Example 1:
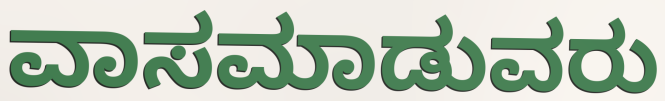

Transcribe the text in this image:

ವಾಸಮಾಡುವರು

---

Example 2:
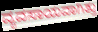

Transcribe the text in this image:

ವ್ಯವಸಾಯವಾಗಿತ್ತು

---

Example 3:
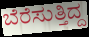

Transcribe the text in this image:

ಬೆರೆಸುತ್ತಿದ್ದ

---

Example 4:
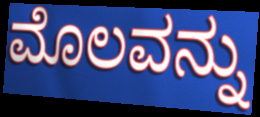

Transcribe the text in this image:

ಮೊಲವನ್ನು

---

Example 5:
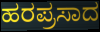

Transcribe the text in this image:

ಹರಪ್ರಸಾದ